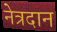
नेत्रदान